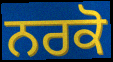
ਨਰਕੋ